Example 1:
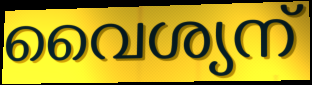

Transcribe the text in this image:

വൈശ്യന്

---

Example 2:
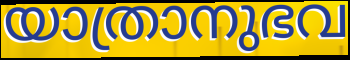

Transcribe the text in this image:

യാത്രാനുഭവ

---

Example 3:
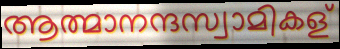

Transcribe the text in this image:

ആത്മാനന്ദസ്വാമികള്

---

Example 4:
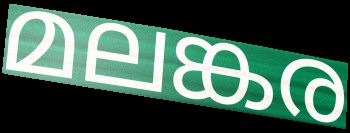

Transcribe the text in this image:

മലങ്കര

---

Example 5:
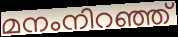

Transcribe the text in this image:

മനംനിറഞ്ഞ്